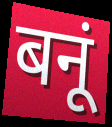
बनूं